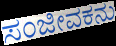
ಸಂಜೀವಕನು